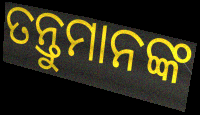
ତନ୍ତୁମାନଙ୍କ